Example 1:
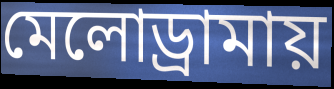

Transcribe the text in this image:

মেলোড্রামায়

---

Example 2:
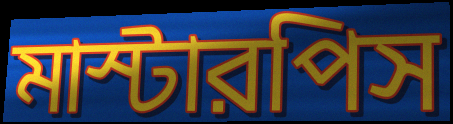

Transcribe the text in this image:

মাস্টারপিস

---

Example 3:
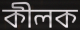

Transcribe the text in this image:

কীলক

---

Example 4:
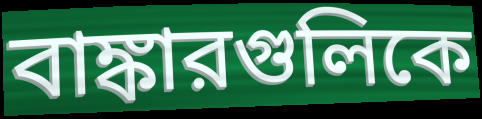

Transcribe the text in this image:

বাঙ্কারগুলিকে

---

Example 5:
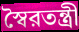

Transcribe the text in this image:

স্বৈরতন্ত্রী